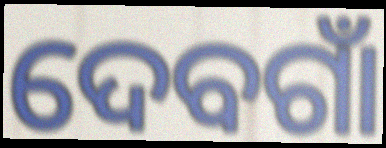
ଦେବଗାଁ